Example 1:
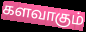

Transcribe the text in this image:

களவாகும்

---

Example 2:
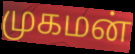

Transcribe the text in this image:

முகமன்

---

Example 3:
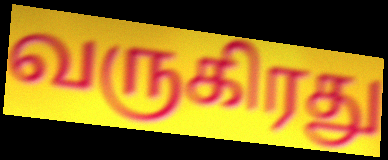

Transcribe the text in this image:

வருகிரது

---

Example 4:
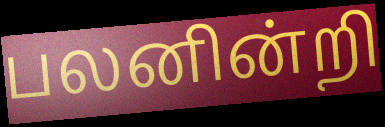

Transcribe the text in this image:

பலனின்றி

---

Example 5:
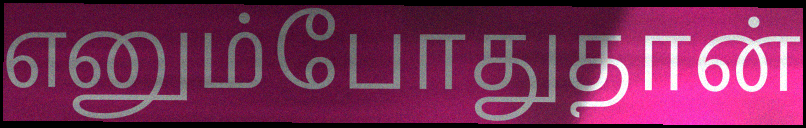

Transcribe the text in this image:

எனும்போதுதான்